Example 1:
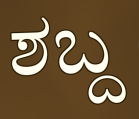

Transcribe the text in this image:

ಶಬ್ದ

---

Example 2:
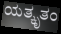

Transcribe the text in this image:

ಯತ್ಕೃತಂ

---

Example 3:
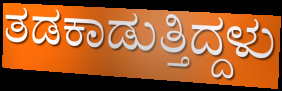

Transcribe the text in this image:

ತಡಕಾಡುತ್ತಿದ್ದಳು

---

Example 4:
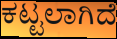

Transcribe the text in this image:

ಕಟ್ಟಲಾಗಿದೆ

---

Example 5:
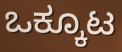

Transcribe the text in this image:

ಒಕ್ಕೂಟ